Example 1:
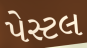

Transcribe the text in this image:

પેસ્ટલ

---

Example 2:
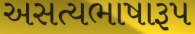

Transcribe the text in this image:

અસત્યભાષારૂપ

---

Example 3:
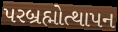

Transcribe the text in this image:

પરબ્રહ્મોત્થાપન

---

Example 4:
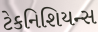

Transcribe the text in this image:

ટેકનિશિયન્સ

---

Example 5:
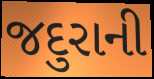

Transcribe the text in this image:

જદુરાની